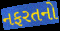
નફરતનો